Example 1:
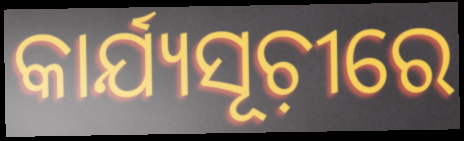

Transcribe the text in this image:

କାର୍ଯ୍ୟସୂଚ଼ୀରେ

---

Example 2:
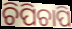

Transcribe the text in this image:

ଚିପିଚାପି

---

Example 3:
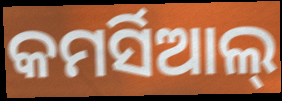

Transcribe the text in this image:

କମର୍ସିଆଲ୍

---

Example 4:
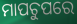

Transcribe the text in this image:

ମାପଚୁପରେ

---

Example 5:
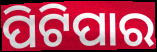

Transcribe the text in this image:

ପିଟିପାର